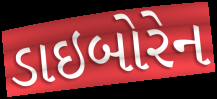
ડાઇબોરેન